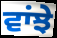
ਵਾਂਝੇ